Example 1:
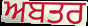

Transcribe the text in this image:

ਅਬਤਰ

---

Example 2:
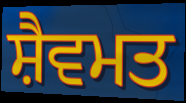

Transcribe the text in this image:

ਸ਼ੈਵਮਤ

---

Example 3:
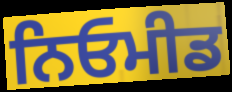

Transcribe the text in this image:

ਨਿਓਮੀਡ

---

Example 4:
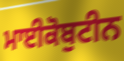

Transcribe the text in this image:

ਮਾਈਕੋਬੁਟੀਨ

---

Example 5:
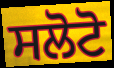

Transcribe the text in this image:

ਸਲੋਟੋ